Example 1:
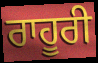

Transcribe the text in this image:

ਰਾਹੂਰੀ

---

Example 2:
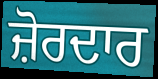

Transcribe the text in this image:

ਜ਼ੋਰਦਾਰ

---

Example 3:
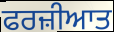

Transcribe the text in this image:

ਫਰਜ਼ੀਆਤ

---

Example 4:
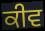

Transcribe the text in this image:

ਕੀਵ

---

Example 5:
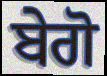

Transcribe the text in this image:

ਬੇਗੋ